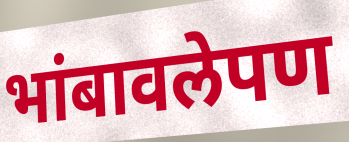
भांबावलेपण